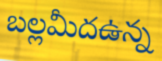
బల్లమీదఉన్న